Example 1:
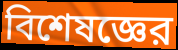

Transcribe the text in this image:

বিশেষজ্ঞের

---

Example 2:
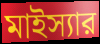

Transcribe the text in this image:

মাইস্যার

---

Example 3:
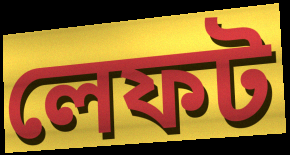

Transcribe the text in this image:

লেফট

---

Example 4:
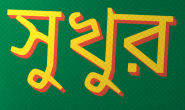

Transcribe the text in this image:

সুখুর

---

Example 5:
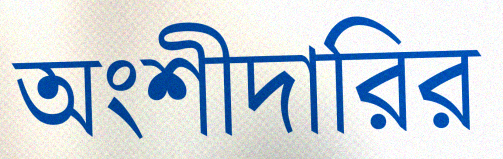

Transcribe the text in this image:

অংশীদারির